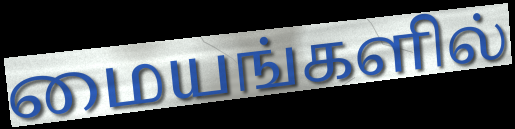
மையங்களில்